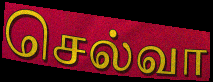
செல்வா